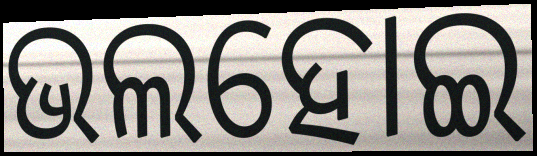
ଭଲହୋଇ